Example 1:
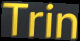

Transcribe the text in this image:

Trin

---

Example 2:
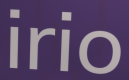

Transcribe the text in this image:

irio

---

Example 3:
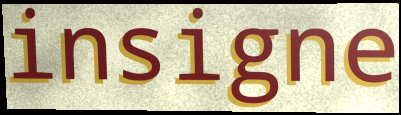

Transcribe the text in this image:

insigne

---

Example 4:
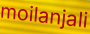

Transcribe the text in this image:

moilanjali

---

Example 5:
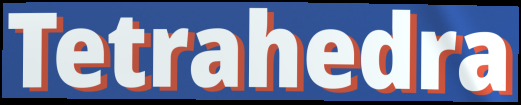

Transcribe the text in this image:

Tetrahedra